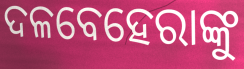
ଦଳବେହେରାଙ୍କୁ